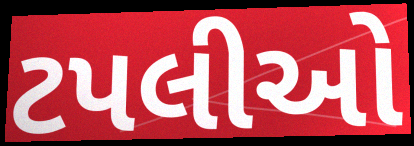
ટપલીઓ